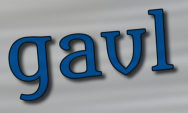
gaul